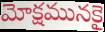
మోక్షమునకై